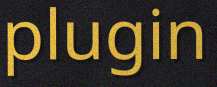
plugin